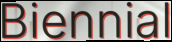
Biennial